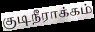
குடிநீராக்கம்